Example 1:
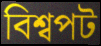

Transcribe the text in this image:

বিশ্বপট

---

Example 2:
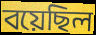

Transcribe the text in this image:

বয়েছিল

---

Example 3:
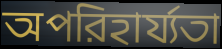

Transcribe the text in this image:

অপরিহার্য্যতা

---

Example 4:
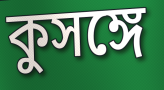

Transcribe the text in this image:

কুসঙ্গে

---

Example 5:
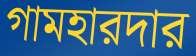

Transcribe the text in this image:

গামহারদার